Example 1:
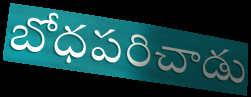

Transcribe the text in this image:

బోధపరిచాడు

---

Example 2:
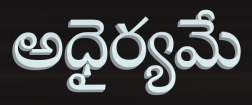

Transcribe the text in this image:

అధైర్యమే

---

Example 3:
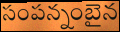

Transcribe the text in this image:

సంపన్నంబైన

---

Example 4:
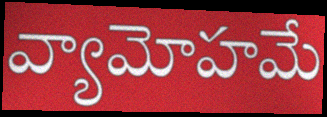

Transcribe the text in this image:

వ్యామోహమే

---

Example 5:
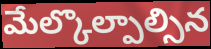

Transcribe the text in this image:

మేల్కొల్పాల్సిన